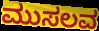
ಮುಸಲವ